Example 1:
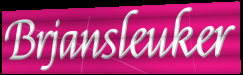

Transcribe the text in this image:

Brjansleuker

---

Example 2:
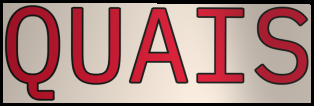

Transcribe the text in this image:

QUAIS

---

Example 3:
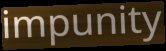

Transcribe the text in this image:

impunity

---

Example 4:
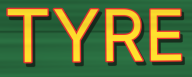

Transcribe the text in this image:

TYRE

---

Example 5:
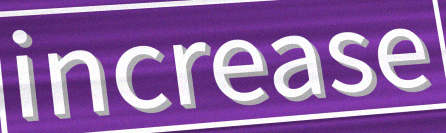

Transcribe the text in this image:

increase